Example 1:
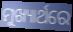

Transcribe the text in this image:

ମୁଖ୍ୟାର୍ଥରେ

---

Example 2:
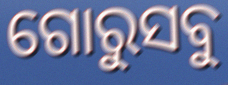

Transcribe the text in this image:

ଗୋରୁସବୁ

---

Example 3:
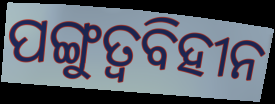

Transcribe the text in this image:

ପଙ୍ଗୁତ୍ୱବିହୀନ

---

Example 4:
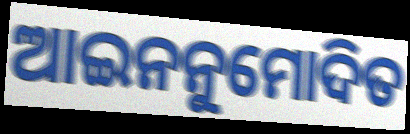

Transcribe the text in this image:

ଆଇନନୁମୋଦିତ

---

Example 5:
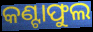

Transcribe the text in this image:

କଣ୍ଟାଫୁଲ